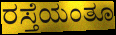
ರಸ್ತೆಯಂತೂ